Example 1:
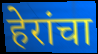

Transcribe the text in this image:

हेरांचा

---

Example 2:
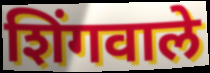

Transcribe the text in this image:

शिंगवाले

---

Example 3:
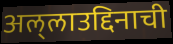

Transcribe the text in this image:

अल्लाउद्दिनाची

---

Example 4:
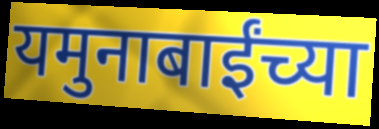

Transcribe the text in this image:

यमुनाबाईंच्या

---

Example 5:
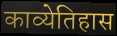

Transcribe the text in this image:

काव्येतिहास